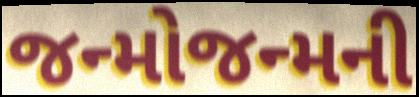
જન્મોજન્મની